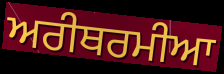
ਅਰੀਥਰਮੀਆ